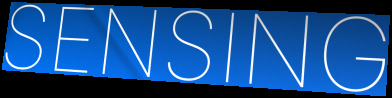
SENSING